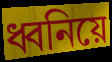
ধ্বনিয়ে